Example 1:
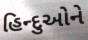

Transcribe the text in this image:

હિન્દુઓને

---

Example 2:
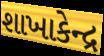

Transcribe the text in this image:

શાખાકેન્દ્ર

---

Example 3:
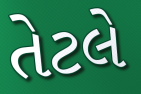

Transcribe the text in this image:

તેટલે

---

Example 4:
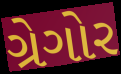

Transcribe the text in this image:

ગ્રેગોર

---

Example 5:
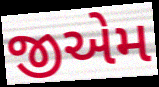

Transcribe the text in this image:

જીએમ